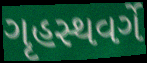
ગૃહસ્થવર્ગે